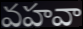
వహవా